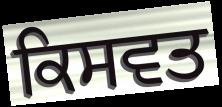
ਕਿਸਵਤ